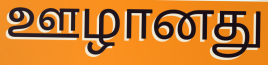
ஊழானது